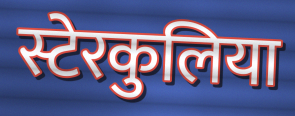
स्टेरकुलिया